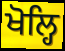
ਖੋਲ੍ਹਿ